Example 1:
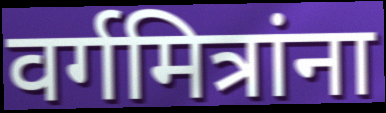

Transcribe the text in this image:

वर्गमित्रांना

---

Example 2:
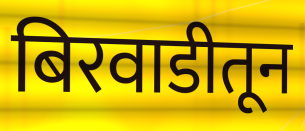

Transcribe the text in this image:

बिरवाडीतून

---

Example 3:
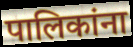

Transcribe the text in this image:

पालिकांना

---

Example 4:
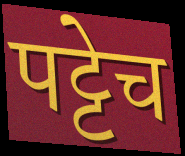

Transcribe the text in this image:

पट्टेच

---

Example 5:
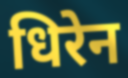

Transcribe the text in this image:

धिरेन